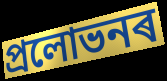
প্ৰলোভনৰ